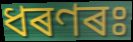
ধৰণৰঃ